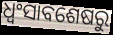
ଧ୍ୱଂସାବଶେଷରୁ